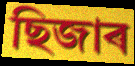
ছিজাৰ